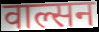
वाल्सन